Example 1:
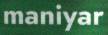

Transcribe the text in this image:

maniyar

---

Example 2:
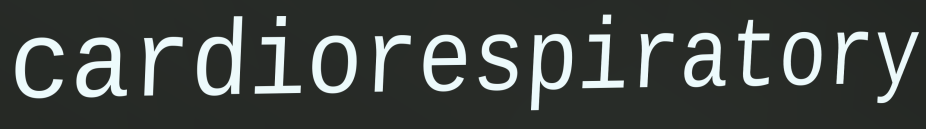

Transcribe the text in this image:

cardiorespiratory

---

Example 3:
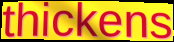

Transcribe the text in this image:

thickens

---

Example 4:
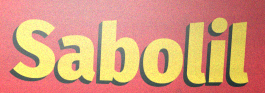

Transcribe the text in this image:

Sabolil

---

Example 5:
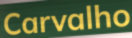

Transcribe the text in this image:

Carvalho